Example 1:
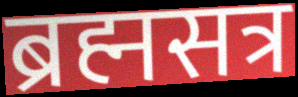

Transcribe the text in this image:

ब्रह्मसत्र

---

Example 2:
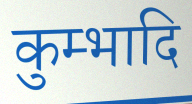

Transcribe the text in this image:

कुम्भादि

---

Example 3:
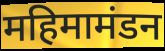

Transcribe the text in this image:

महिमामंडन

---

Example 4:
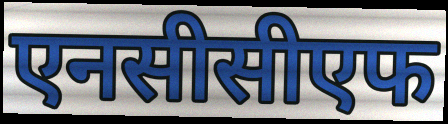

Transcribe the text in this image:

एनसीसीएफ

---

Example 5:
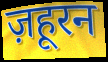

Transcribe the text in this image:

ज़हूरन